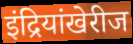
इंद्रियांखेरीज